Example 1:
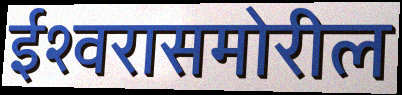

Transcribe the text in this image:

ईश्वरासमोरील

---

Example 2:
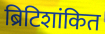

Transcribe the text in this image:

ब्रिटिशांकित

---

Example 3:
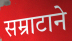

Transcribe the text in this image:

सम्राटाने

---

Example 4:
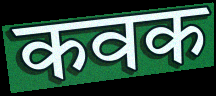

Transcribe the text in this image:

कवक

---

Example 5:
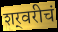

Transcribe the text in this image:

शर्वरीचं